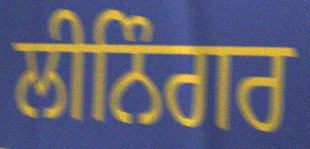
ਲੀਨਿੰਗਰ